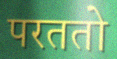
परततो